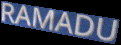
RAMADU